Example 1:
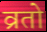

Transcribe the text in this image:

व्रतो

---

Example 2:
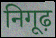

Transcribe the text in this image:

निगूढ़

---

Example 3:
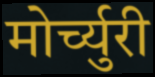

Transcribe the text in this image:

मोर्च्युरी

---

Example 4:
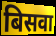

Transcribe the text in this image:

बिसवा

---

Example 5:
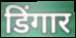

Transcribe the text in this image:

डिंगार